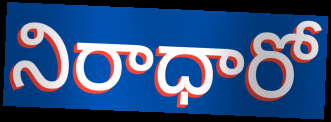
నిరాధారో